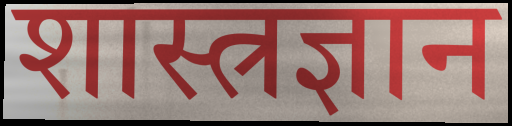
शास्त्रज्ञान